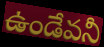
ఉండేవనీ